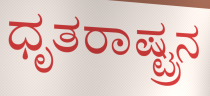
ಧೃತರಾಷ್ಟ್ರನ